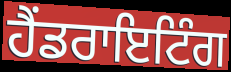
ਹੈਂਡਰਾਇਟਿੰਗ